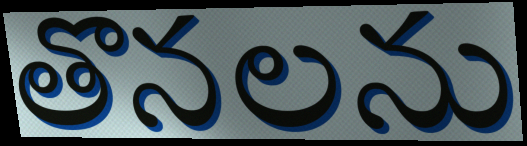
తొనలను